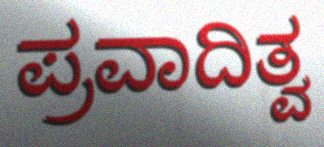
ಪ್ರವಾದಿತ್ವ